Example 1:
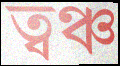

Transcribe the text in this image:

ত্বঞ্চ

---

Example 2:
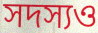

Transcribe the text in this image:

সদস্যও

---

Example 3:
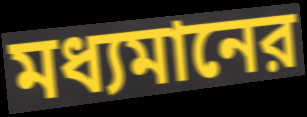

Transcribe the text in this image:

মধ্যমানের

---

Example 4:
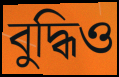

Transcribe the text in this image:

বুদ্ধিও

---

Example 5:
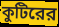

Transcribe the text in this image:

কুটিরের